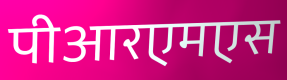
पीआरएमएस